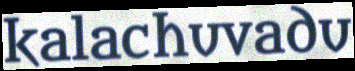
kalachuvadu